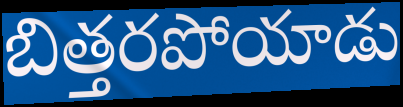
బిత్తరపోయాడు